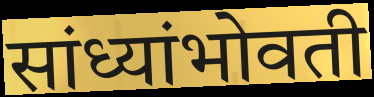
सांध्यांभोवती